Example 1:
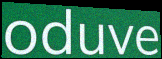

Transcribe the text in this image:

oduve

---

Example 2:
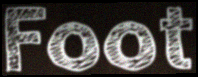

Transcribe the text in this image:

Foot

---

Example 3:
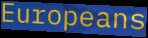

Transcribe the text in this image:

Europeans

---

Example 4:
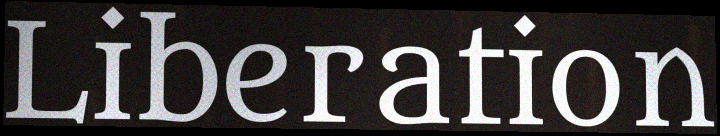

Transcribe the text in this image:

Liberation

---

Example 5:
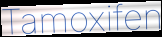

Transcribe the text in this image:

Tamoxifen